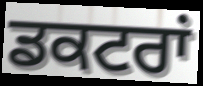
ਡਕਟਰਾਂ